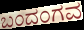
ಬಂದಂಗವ